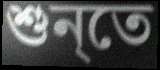
শুন্‌তে